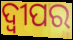
ଦ୍ଵୀପର